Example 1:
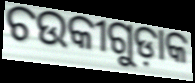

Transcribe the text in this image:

ଚଉକୀଗୁଡ଼ାକ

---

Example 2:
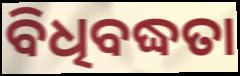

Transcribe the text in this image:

ବିଧିବଦ୍ଧତା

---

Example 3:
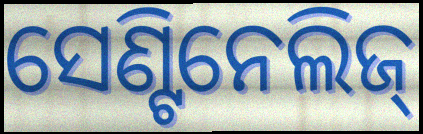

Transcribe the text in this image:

ସେଣ୍ଟିନେଲିଜ୍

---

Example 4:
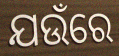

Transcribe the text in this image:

ଯଉଁରେ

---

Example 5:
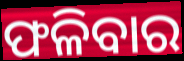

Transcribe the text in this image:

ଫଳିବାର